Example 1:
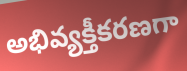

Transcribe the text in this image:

అభివ్యక్తీకరణగా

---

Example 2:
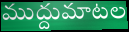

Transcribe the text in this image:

ముద్దుమాటల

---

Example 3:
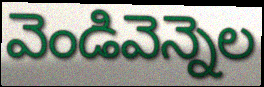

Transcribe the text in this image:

వెండివెన్నెల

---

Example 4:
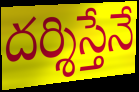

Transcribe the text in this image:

దర్శిస్తేనే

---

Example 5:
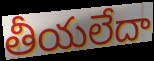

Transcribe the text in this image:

తీయలేదా